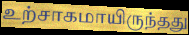
உற்சாகமாயிருந்தது